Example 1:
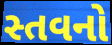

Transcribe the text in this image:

સ્તવનો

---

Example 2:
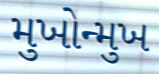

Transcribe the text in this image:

મુખોન્મુખ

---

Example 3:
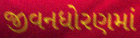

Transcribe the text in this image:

જીવનધોરણમાં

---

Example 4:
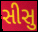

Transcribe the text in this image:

સીસુ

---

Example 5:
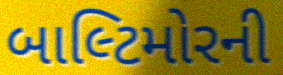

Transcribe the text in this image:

બાલ્ટિમોરની